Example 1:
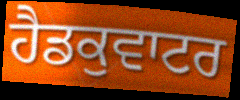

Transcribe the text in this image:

ਹੈਡਕੁਵਾਟਰ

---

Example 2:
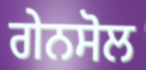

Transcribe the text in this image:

ਗੇਨਸੋਲ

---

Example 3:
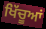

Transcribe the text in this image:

ਖਿੱਚੂਆਂ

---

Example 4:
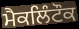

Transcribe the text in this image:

ਮੈਕਲਿੰਟੌਕ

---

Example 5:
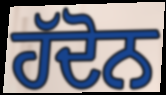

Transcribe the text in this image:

ਹੱਦੋਨ